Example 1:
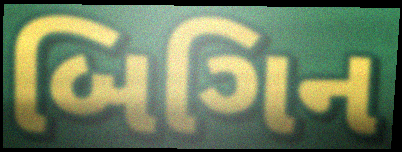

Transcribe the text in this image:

બિગિન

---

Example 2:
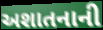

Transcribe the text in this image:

અશાતનાની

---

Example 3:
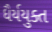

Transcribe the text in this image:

ધૈર્યયુક્ત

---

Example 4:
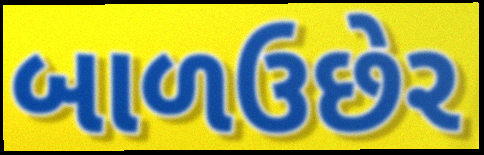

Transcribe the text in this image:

બાળઉછેર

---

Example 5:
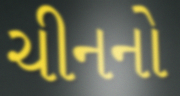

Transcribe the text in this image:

ચીનનો